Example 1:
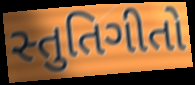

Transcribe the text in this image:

સ્તુતિગીતો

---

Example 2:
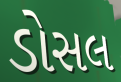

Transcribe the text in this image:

ડોસલ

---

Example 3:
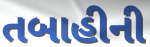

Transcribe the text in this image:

તબાહીની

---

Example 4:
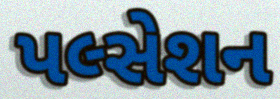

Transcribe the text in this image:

પલ્સેશન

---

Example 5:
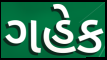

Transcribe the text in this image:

ગહેક